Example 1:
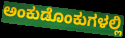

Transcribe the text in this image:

ಅಂಕುಡೊಂಕುಗಳಲ್ಲಿ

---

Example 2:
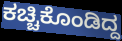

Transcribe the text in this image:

ಕಚ್ಚಿಕೊಂಡಿದ್ದ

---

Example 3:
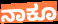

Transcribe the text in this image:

ನಾಕೂ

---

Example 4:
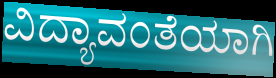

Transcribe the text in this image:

ವಿದ್ಯಾವಂತೆಯಾಗಿ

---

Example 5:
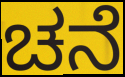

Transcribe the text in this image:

ಚನೆ